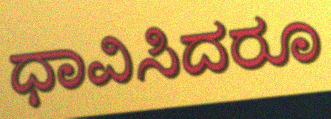
ಧಾವಿಸಿದರೂ